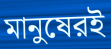
মানুষেরই